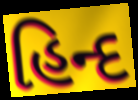
હિન્દ